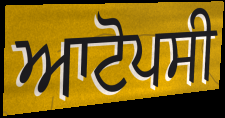
ਆਟੋਪਸੀ